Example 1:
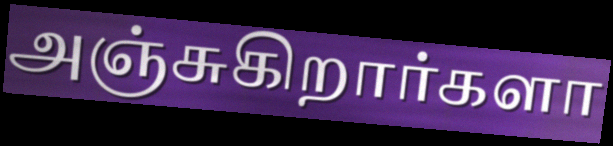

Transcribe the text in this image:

அஞ்சுகிறார்களா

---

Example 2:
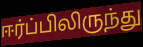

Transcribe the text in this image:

ஈர்ப்பிலிருந்து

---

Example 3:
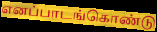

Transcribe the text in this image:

எனப்பாடங்கொண்டு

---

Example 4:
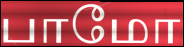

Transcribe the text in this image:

பாமோ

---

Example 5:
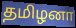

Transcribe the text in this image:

தமிழனா